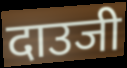
दाउजी